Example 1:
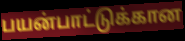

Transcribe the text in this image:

பயன்பாட்டுக்கான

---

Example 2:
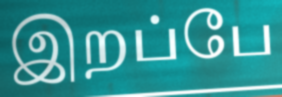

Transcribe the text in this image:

இறப்பே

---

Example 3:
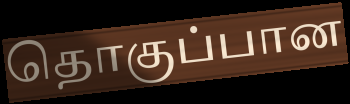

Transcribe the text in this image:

தொகுப்பான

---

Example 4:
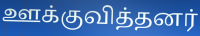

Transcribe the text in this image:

ஊக்குவித்தனர்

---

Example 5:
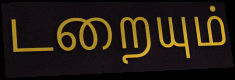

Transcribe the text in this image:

டறையும்